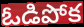
ఓడిపోక